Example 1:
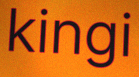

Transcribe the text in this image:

kingi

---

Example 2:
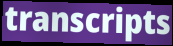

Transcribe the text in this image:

transcripts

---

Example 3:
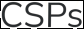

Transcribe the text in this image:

CSPs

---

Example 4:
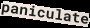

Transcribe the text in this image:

paniculate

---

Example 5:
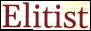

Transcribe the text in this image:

Elitist